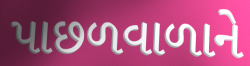
પાછળવાળાને